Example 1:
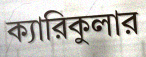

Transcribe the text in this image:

ক্যারিকুলার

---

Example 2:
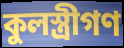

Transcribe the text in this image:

কুলস্ত্রীগণ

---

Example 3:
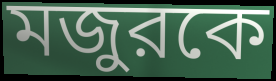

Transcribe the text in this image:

মজুরকে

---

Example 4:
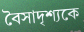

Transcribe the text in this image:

বৈসাদৃশ্যকে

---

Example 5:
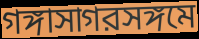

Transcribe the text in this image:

গঙ্গাসাগরসঙ্গমে